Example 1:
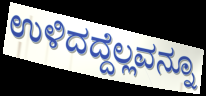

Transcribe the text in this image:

ಉಳಿದದ್ದೆಲ್ಲವನ್ನೂ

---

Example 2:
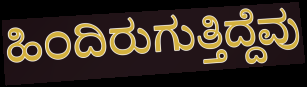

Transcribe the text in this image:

ಹಿಂದಿರುಗುತ್ತಿದ್ದೆವು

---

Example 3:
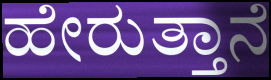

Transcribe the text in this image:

ಹೇರುತ್ತಾನೆ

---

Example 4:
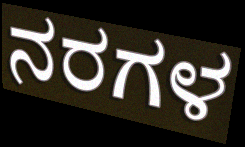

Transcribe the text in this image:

ನರಗಳ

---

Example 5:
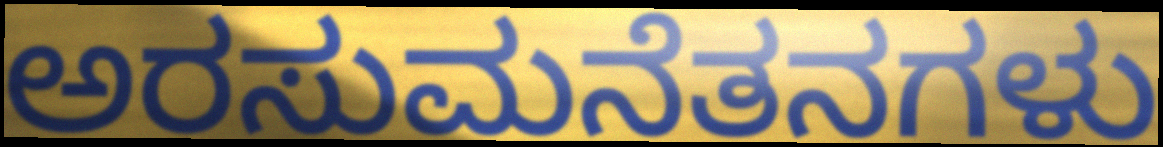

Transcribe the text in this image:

ಅರಸುಮನೆತನಗಳು